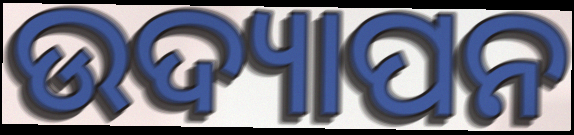
ଉଦ୍ୟାପନ